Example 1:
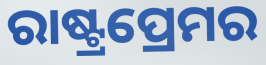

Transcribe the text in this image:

ରାଷ୍ଟ୍ରପ୍ରେମର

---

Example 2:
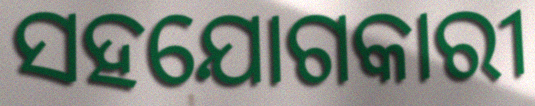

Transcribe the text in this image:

ସହଯୋଗକାରୀ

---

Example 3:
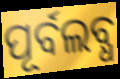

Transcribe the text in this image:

ପୂର୍ବଲବ୍ଧ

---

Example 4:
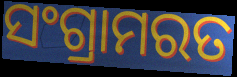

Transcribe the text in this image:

ସଂଗ୍ରାମରତ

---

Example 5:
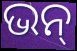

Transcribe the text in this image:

ଭନ୍